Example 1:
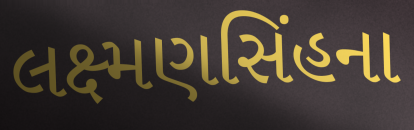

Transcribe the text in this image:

લક્ષ્મણસિંહના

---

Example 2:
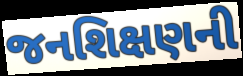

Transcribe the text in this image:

જનશિક્ષણની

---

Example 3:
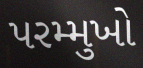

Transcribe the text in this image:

પરમ્મુખો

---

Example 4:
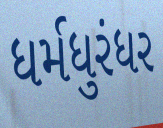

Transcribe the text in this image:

ધર્મધુરંધર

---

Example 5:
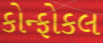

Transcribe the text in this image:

કોન્ફોકલ